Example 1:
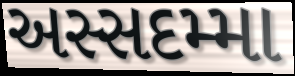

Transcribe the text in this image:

અસ્સદમ્મા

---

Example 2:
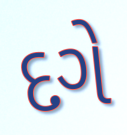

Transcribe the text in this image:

દગે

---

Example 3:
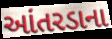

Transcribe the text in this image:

આંતરડાના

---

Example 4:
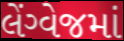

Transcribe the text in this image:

લેંગ્વેજમાં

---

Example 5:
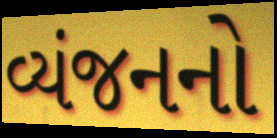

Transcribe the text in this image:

વ્યંજનનો